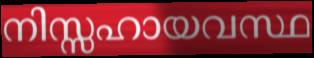
നിസ്സഹായവസ്ഥ